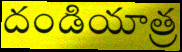
దండియాత్ర